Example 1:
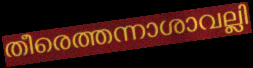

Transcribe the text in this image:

തീരെത്തന്നാശാവല്ലി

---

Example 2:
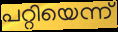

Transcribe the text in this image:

പറ്റിയെന്ന്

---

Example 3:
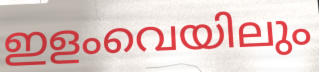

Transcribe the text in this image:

ഇളംവെയിലും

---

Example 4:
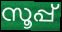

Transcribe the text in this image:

സൂപ്പ്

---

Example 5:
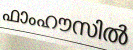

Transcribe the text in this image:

ഫാംഹൗസിൽ